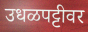
उधळपट्टीवर